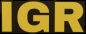
IGR